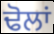
ਢੋਲਾਂ